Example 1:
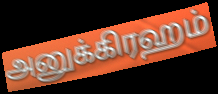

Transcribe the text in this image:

அனுக்கிரஹம்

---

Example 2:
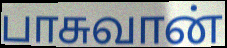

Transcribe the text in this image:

பாசுவான்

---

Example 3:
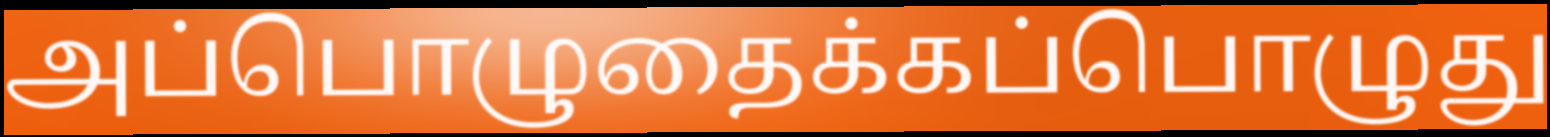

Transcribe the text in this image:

அப்பொழுதைக்கப்பொழுது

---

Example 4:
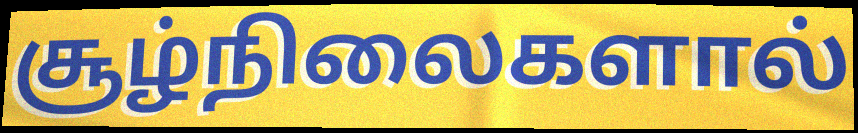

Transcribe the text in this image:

சூழ்நிலைகளால்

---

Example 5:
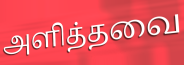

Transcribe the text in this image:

அளித்தவை